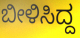
ಬೀಳಿಸಿದ್ದ